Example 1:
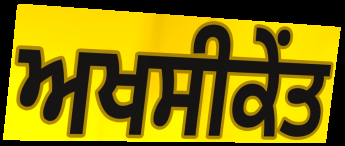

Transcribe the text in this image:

ਅਖਸੀਕੇਂਤ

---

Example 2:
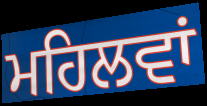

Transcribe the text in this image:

ਮਹਿਲਵਾਂ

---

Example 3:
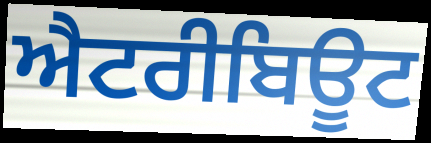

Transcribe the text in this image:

ਐਟਰੀਬਿਊਟ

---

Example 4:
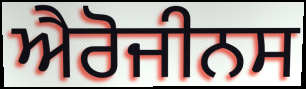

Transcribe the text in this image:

ਐਰੋਜੀਨਸ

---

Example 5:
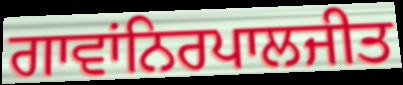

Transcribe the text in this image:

ਗਾਵਾਂਨਿਰਪਾਲਜੀਤ